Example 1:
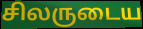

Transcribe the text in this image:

சிலருடைய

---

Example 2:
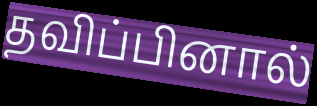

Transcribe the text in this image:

தவிப்பினால்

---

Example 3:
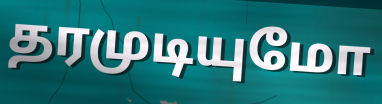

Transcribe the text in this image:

தரமுடியுமோ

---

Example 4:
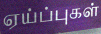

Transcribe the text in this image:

ஏய்ப்புகள்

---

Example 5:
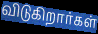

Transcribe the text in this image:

விடுகிறார்கள்